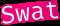
Swat